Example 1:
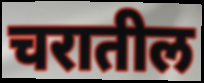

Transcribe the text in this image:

चरातील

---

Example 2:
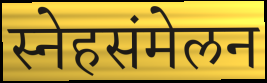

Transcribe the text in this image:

स्नेहसंमेलन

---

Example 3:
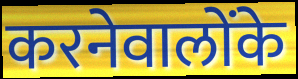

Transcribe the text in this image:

करनेवालोंके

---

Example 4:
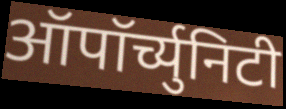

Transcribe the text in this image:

ऑपॉर्च्युनिटी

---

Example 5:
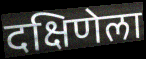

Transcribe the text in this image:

दक्षिणेला